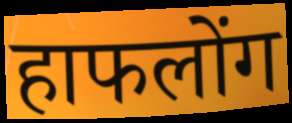
हाफलोंग